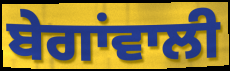
ਬੇਗਾਂਵਾਲੀ